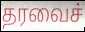
தரவைச்